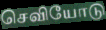
செவியோடு